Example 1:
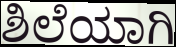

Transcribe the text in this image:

ಶಿಲೆಯಾಗಿ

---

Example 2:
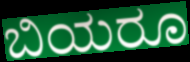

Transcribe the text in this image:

ಬಿಯರೂ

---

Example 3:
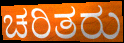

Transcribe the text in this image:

ಚರಿತರು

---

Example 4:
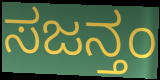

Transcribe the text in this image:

ಸಜನ್ತಂ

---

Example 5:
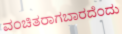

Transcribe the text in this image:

ವಂಚಿತರಾಗಬಾರದೆಂದು